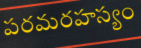
పరమరహస్యం